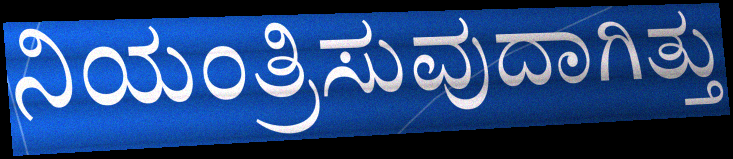
ನಿಯಂತ್ರಿಸುವುದಾಗಿತ್ತು